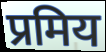
प्रमिय